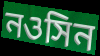
নওসিন